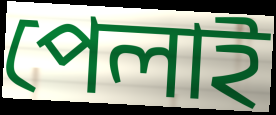
পেলাই